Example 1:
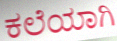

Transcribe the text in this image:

ಕಲೆಯಾಗಿ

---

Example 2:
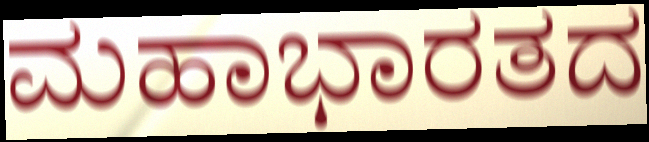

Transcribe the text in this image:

ಮಹಾಭಾರತದ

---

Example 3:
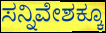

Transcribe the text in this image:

ಸನ್ನಿವೇಶಕ್ಕೂ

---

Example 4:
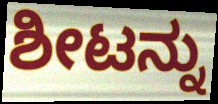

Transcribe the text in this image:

ಶೀಟನ್ನು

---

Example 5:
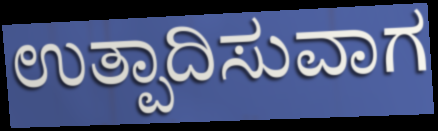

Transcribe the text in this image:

ಉತ್ಪಾದಿಸುವಾಗ